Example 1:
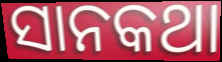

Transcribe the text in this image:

ସାନକଥା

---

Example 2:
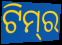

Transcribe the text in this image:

ଟିମ୍‌ର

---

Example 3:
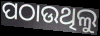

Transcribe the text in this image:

ପଠାଉଥିଲୁ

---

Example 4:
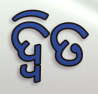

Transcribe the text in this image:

ଦ୍ୱିତ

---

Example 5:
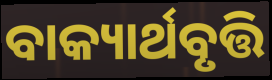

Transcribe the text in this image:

ବାକ୍ୟାର୍ଥବୃତ୍ତି